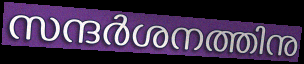
സന്ദർശനത്തിനു